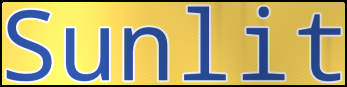
Sunlit